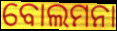
ବୋଲମନା